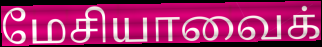
மேசியாவைக்